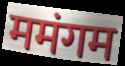
ममंगम